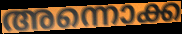
അന്നൊക്ക